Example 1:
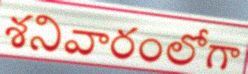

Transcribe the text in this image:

శనివారంలోగా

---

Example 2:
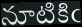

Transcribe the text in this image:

నూటికిఁ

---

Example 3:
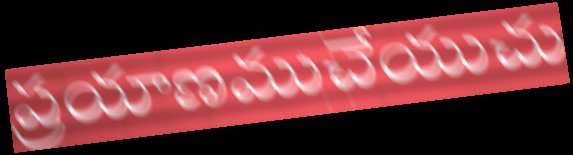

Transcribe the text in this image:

ప్రయాణముచేయుచు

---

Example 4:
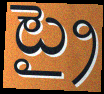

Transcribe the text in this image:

ట్రై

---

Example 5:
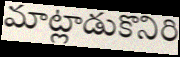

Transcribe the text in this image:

మాట్లాడుకొనిరి